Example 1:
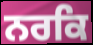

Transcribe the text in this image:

ਨਰਕਿ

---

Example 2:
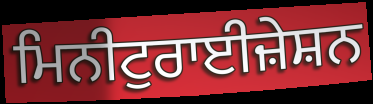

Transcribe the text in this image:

ਮਿਨੀਟੁਰਾਈਜ਼ੇਸ਼ਨ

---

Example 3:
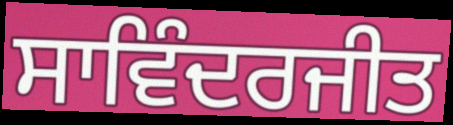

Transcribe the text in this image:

ਸਾਵਿੰਦਰਜੀਤ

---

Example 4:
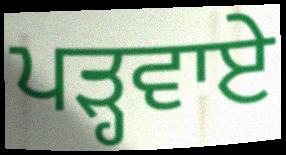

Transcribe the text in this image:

ਪੜ੍ਹਵਾਏ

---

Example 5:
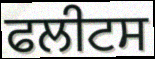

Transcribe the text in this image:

ਫਲੀਟਸ